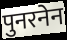
पुनरनेन